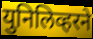
युनिलिव्हरने